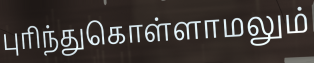
புரிந்துகொள்ளாமலும்